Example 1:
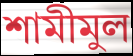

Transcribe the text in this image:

শামীমুল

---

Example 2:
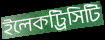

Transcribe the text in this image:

ইলেকট্রিসিটি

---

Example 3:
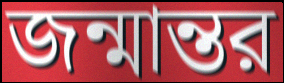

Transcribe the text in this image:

জন্মান্তর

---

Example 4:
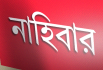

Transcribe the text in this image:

নাহিবার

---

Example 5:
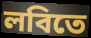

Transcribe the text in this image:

লবিতে